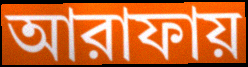
আরাফায়